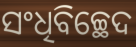
ସଂଧିବିଚ୍ଛେଦ